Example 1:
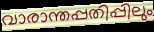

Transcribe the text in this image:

വാരാന്തപ്പതിപ്പിലും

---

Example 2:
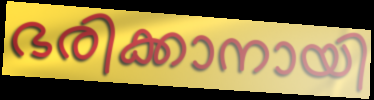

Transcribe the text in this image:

ഭരിക്കാനായി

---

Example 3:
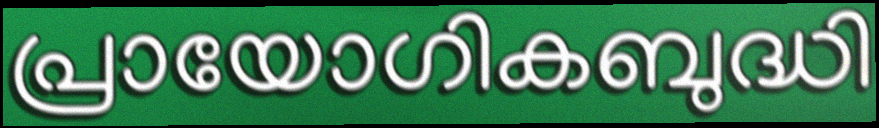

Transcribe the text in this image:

പ്രായോഗികബുദ്ധി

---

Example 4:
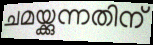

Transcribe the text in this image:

ചമയ്ക്കുന്നതിന്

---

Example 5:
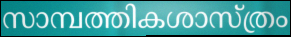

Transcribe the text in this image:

സാമ്പത്തികശാസ്ത്രം